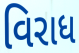
વિરાધ